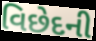
વિછેદની